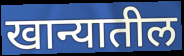
खान्यातील